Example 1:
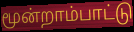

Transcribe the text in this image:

மூன்றாம்பாட்டு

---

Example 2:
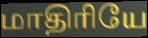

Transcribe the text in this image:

மாதிரியே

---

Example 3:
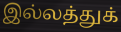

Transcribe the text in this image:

இல்லத்துக்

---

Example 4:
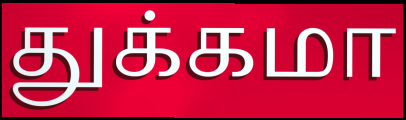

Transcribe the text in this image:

துக்கமா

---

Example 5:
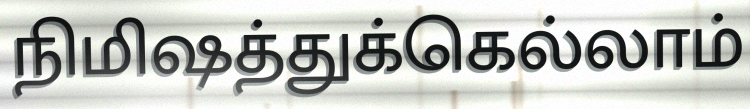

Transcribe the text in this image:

நிமிஷத்துக்கெல்லாம்